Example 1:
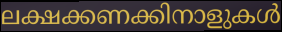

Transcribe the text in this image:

ലക്ഷക്കണക്കിനാളുകൾ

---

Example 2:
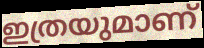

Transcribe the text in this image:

ഇത്രയുമാണ്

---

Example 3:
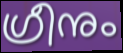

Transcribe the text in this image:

ഗ്രീനും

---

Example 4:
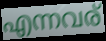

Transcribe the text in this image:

എന്നവര്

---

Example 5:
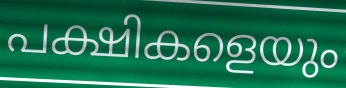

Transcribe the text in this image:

പക്ഷികളെയും